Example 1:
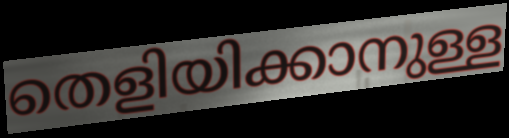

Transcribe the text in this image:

തെളിയിക്കാനുള്ള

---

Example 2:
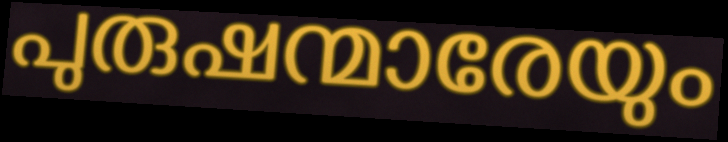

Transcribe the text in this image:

പുരുഷന്മാരേയും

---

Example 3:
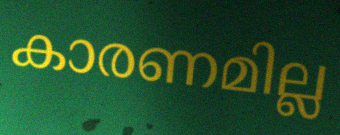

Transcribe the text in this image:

കാരണമില്ല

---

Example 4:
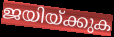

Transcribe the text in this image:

ജയിയ്ക്കുക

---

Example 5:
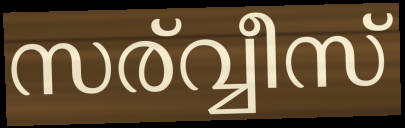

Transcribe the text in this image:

സര്വ്വീസ്